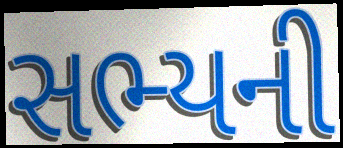
સભ્યની